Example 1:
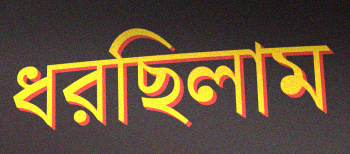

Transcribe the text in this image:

ধরছিলাম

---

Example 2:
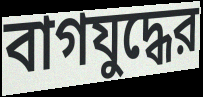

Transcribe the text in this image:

বাগযুদ্ধের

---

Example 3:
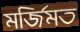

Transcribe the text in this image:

মর্জিমত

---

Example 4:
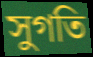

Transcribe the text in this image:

সুগতি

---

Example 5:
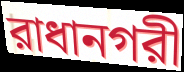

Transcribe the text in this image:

রাধানগরী